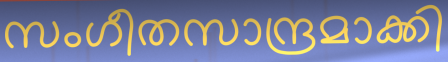
സംഗീതസാന്ദ്രമാക്കി